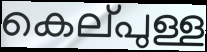
കെല്‌പുള്ള